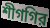
শীগগির